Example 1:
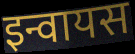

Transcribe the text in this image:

इन्वायस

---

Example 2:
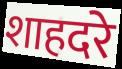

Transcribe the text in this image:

शाहदरे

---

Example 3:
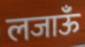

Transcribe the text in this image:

लजाऊँ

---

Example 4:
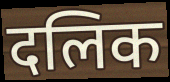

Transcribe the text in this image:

दलिक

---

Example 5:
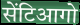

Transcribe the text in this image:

सेंटिआगो